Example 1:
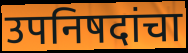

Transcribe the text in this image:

उपनिषदांचा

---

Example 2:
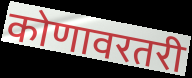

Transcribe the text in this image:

कोणावरतरी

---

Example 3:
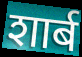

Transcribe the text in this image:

शार्ब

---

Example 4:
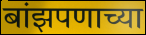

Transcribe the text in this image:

बांझपणाच्या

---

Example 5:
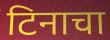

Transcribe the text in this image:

टिनाचा